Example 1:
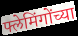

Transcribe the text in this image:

फ्लेमिंगोंच्या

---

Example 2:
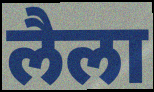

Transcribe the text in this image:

लैला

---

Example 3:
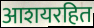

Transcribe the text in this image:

आशयरहित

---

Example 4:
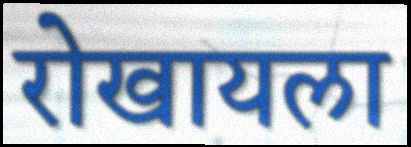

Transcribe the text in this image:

रोखायला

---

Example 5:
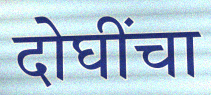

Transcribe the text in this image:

दोघींचा